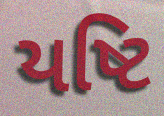
યષ્ટિ